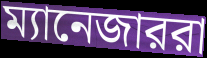
ম্যানেজাররা